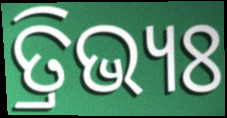
ତ୍ରିଭ୍ୟଃ